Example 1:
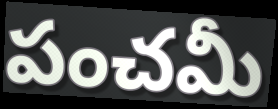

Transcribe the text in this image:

పంచమీ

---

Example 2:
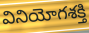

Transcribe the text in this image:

వినియోగశక్తి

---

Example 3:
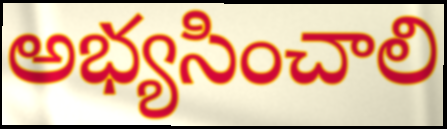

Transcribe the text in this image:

అభ్యసించాలి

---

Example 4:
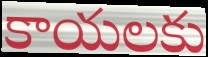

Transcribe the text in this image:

కాయలకు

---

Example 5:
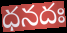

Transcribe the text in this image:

ధనదః